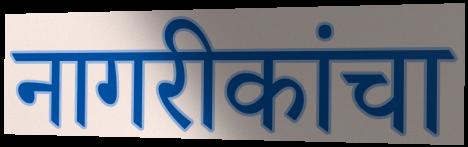
नागरीकांचा